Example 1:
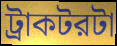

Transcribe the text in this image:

ট্রাকটরটা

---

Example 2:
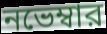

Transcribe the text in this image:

নভেম্বার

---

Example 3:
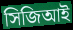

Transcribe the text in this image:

সিজিআই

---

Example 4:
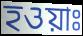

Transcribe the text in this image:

হওয়াঃ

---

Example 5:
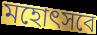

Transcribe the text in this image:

মহোৎসবে